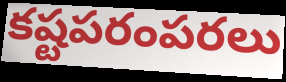
కష్టపరంపరలు